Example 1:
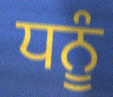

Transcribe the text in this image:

ਧਨੂੰ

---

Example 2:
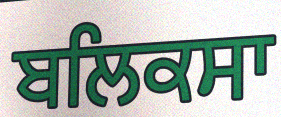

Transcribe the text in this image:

ਬਲਿਕਸਾ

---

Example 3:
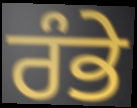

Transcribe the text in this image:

ਰੰਭੇ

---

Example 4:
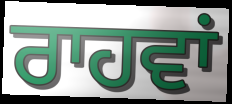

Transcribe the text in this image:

ਰਾਹਵਾਂ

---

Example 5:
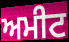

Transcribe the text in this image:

ਅਮੀਟ